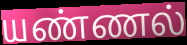
யண்ணல்